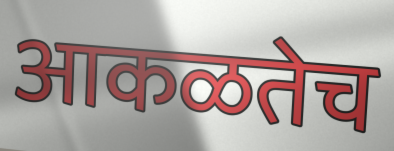
आकळतेच